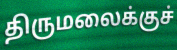
திருமலைக்குச்